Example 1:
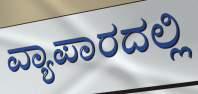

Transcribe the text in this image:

ವ್ಯಾಪಾರದಲ್ಲಿ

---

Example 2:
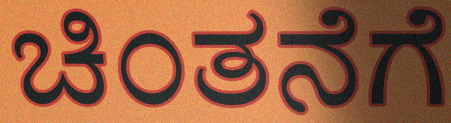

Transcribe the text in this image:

ಚಿಂತನೆಗೆ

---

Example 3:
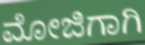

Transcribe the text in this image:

ಮೋಜಿಗಾಗಿ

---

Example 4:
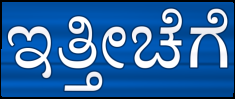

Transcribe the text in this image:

ಇತ್ತೀಚೆಗೆ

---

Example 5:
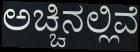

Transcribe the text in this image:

ಅಚ್ಚಿನಲ್ಲಿವೆ